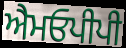
ਐਮਓਪੀਪੀ